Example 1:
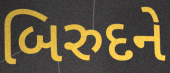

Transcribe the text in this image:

બિરુદને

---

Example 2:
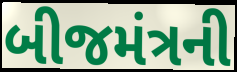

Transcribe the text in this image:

બીજમંત્રની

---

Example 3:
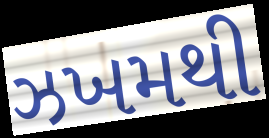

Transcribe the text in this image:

ઝખમથી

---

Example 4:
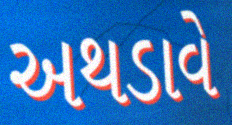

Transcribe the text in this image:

અથડાવે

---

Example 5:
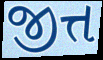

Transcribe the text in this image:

જીત્ત